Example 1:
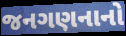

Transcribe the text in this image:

જનગણનાનો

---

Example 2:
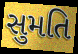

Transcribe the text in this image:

સુમતિ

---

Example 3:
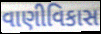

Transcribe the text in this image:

વાણીવિકાસ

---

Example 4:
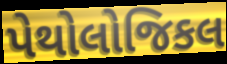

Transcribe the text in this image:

પેથોલોજિકલ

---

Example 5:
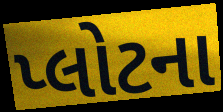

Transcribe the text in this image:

પ્લોટના